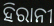
ହିରାନୀ